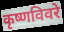
कृष्णविवरे